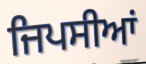
ਜਿਪਸੀਆਂ